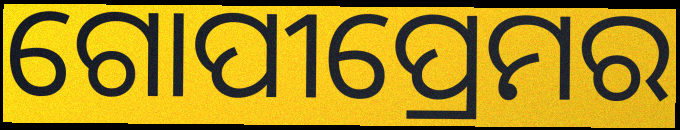
ଗୋପୀପ୍ରେମର